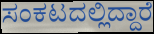
ಸಂಕಟದಲ್ಲಿದ್ದಾರೆ